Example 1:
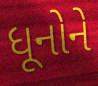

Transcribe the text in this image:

ધૂનોને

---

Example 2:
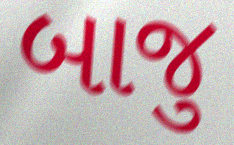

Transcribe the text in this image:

બાજુ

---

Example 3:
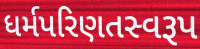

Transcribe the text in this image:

ધર્મપરિણતસ્વરૂપ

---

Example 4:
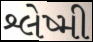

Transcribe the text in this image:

શ્લેષ્મી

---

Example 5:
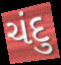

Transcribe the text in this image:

ચંદુ